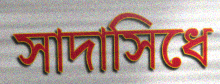
সাদাসিধে